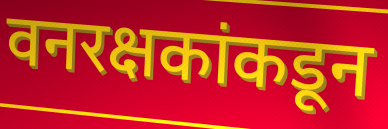
वनरक्षकांकडून